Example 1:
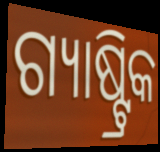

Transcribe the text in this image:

ଗ୍ୟାଷ୍ଟ୍ରିକ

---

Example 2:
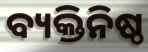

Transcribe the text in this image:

ବ୍ୟକ୍ତିନିଷ୍ଠ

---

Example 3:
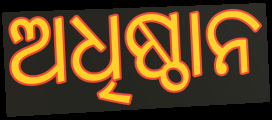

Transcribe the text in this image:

ଅଧିଷ୍ଠାନ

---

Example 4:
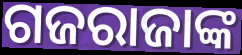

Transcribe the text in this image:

ଗଜରାଜାଙ୍କ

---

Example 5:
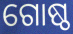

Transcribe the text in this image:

ଗୋଷ୍ଠ